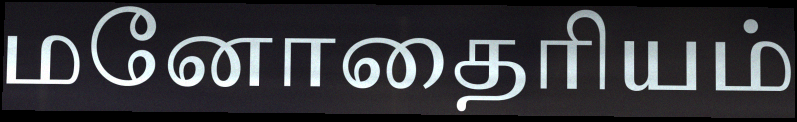
மனோதைரியம்